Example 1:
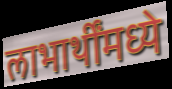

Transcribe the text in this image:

लाभार्थींमध्ये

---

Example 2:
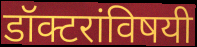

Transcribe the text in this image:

डॉक्टरांविषयी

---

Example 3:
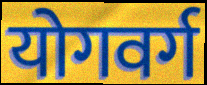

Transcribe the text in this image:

योगवर्ग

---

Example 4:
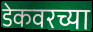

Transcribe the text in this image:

डेकवरच्या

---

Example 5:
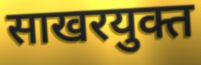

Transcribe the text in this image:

साखरयुक्त